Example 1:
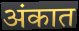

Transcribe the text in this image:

अंकात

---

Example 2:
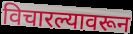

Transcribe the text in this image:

विचारल्यावरून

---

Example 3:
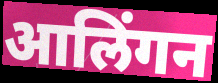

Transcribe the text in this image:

आलिंगन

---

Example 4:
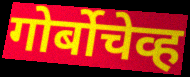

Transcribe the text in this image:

गोर्बोचेव्ह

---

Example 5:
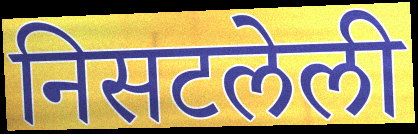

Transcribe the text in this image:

निसटलेली